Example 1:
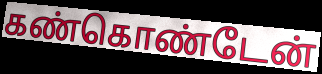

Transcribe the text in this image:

கண்கொண்டேன்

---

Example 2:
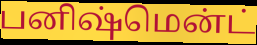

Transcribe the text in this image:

பனிஷ்மென்ட்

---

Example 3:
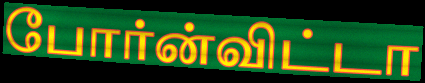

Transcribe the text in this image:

போர்ன்விட்டா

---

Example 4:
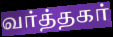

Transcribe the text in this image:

வர்த்தகர்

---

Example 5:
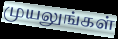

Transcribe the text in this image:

முயலுங்கள்